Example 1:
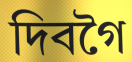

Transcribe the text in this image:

দিবগৈ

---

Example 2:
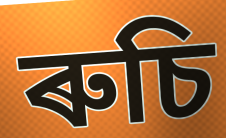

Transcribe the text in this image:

ৰুচি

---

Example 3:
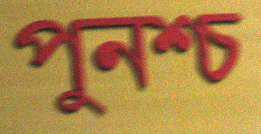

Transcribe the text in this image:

পুনশ্চ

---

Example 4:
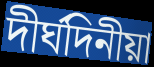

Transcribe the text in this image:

দীৰ্ঘদিনীয়া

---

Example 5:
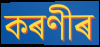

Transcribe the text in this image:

কৰণীৰ